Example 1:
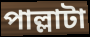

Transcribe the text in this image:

পাল্লাটা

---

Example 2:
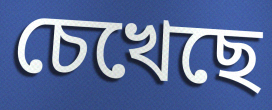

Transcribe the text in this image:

চেখেছে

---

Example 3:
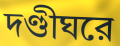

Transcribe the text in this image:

দণ্ডীঘরে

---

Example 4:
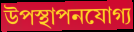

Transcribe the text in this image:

উপস্থাপনযোগ্য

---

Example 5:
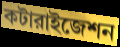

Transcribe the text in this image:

কটারাইজেশন